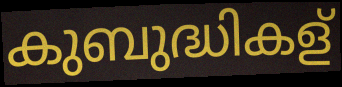
കുബുദ്ധികള്